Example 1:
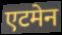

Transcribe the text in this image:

एटमेन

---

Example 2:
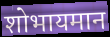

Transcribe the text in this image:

शोभायमान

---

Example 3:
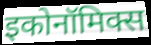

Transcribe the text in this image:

इकोनॉमिक्स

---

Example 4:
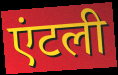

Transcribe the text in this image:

एंटली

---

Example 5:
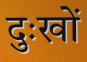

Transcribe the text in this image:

दुःखों